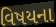
વિષયના